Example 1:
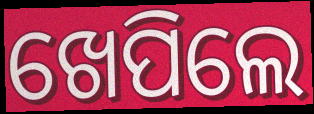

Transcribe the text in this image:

ଖେପିଲେ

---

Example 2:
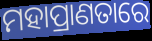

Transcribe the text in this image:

ମହାପ୍ରାଣତାରେ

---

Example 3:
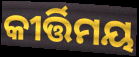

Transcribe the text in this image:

କୀର୍ତ୍ତିମୟ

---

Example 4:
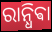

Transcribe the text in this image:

ରାନ୍ଧିଵା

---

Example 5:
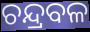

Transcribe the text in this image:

ଚନ୍ଦ୍ରବଳ